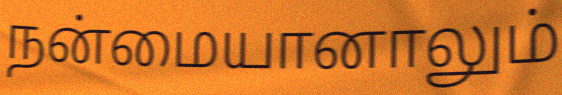
நன்மையானாலும்